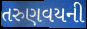
તરુણવયની